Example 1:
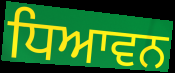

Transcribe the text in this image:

ਧਿਆਵਨ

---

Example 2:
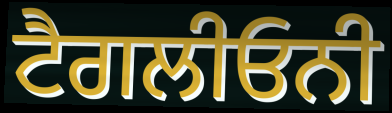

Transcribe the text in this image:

ਟੈਗਲੀਓਨੀ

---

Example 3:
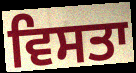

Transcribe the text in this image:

ਵਿਸਤਾ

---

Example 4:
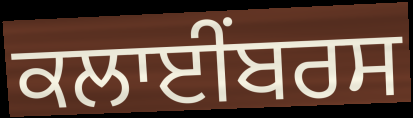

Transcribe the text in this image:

ਕਲਾਈਂਬਰਸ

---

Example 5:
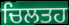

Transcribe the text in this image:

ਚਿਲਤਹ